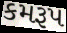
કમરૂપ